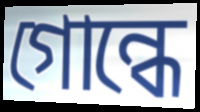
গোন্ধে